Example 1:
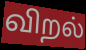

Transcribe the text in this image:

விறல்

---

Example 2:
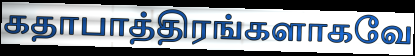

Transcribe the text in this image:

கதாபாத்திரங்களாகவே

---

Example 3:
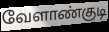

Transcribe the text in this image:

வேளாண்குடி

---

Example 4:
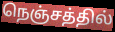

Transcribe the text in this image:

நெஞ்சத்தில்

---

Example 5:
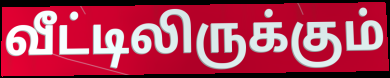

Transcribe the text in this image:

வீட்டிலிருக்கும்